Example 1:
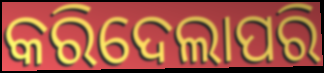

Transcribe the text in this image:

କରିଦେଲାପରି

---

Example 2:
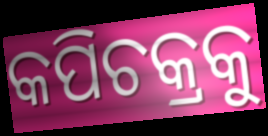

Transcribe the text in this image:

କପିଚକ୍ରକୁ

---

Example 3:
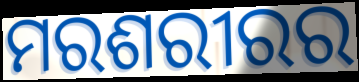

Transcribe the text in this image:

ମରଶରୀରର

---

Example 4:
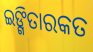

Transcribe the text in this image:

ଇଙ୍ଗିତାରକତ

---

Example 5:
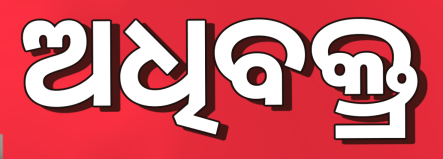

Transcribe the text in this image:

ଅଧିବକ୍ତ୍ର